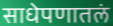
साधेपणातलं